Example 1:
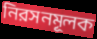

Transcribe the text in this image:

নিরসনমূলক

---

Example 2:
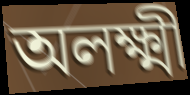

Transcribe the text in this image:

অলক্ষ্মী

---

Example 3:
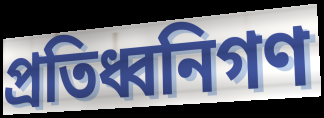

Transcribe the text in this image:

প্রতিধ্বনিগণ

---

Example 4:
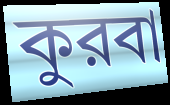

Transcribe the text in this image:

কুরবা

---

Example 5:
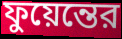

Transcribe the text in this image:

ফুয়েন্তের